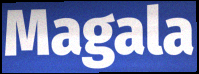
Magala